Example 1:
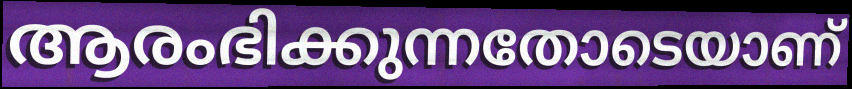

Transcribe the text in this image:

ആരംഭിക്കുന്നതോടെയാണ്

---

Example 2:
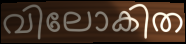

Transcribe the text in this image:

വിലോകിത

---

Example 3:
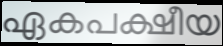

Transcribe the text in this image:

ഏകപക്ഷീയ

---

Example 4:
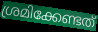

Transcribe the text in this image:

ശ്രമിക്കേണ്ടത്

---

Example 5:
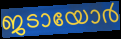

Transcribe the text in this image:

ജടായോർ